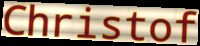
Christof